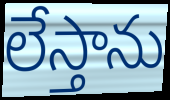
లేస్తాను